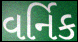
વર્નિક